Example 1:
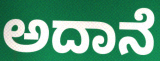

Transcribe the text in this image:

ಅದಾನೆ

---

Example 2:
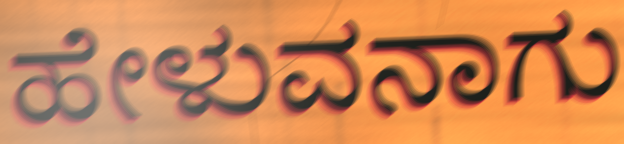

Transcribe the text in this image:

ಹೇಳುವನಾಗು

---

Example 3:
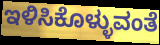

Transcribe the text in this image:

ಇಳಿಸಿಕೊಳ್ಳುವಂತೆ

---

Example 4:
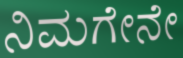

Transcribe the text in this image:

ನಿಮಗೇನೇ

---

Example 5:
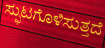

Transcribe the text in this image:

ಸ್ಫುಟಗೊಳಿಸುತ್ತದೆ